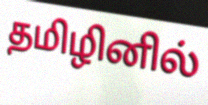
தமிழினில்